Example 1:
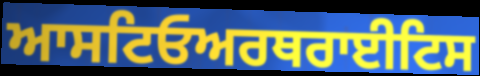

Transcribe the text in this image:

ਆਸਟਿਓਅਰਥਰਾਈਟਿਸ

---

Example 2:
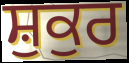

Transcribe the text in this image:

ਸ਼ੁਕੁਰ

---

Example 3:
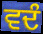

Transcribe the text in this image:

ਵਦੰ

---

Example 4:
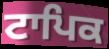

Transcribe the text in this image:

ਟਾਪਿਕ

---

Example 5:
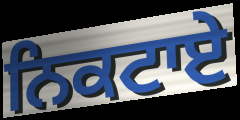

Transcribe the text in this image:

ਨਿਕਟਾਏ